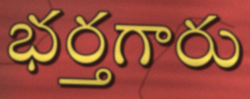
భర్తగారు